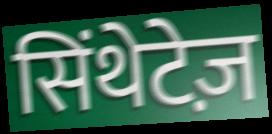
सिंथेटेज़